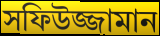
সফিউজ্জামান